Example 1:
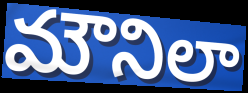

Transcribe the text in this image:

మౌనిలా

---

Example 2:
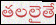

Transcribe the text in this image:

తలలైతే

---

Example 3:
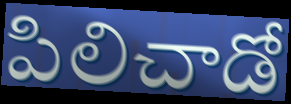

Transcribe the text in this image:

పిలిచాడో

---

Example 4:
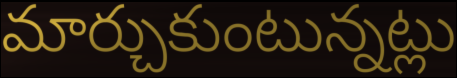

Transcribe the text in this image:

మార్చుకుంటున్నట్లు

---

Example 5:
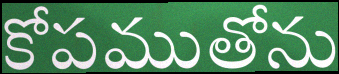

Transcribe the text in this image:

కోపముతోను